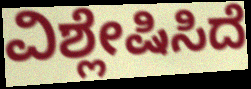
ವಿಶ್ಲೇಷಿಸಿದೆ